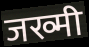
जख्मी